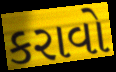
કરાવો